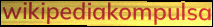
wikipediakompulsa